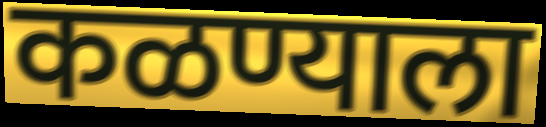
कळण्याला